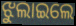
ଝୁଲାଇଲେ